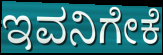
ಇವನಿಗೇಕೆ